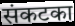
संकटका